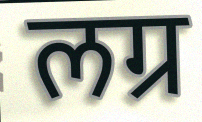
लग्र